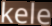
kele